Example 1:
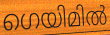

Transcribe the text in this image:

ഗെയിമിൽ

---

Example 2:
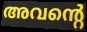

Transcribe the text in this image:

അവന്റെ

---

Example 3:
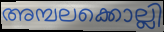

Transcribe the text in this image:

അമ്പലക്കൊല്ലി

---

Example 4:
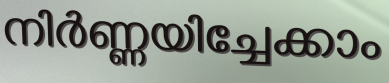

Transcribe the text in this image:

നിർണ്ണയിച്ചേക്കാം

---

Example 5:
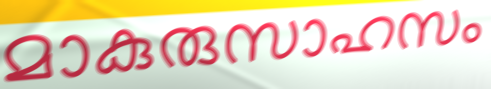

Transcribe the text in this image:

മാകുരുസാഹസം